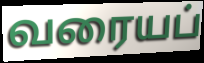
வரையப்